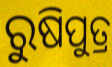
ରୁଷିପୁତ୍ର